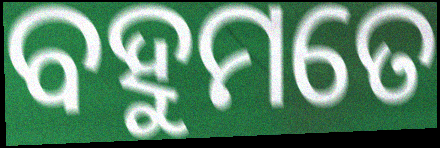
ବହୁମତେ